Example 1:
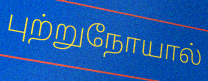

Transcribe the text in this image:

புற்றுநோயால்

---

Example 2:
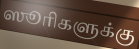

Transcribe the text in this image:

ஸூரிகளுக்கு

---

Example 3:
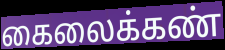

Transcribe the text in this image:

கைலைக்கண்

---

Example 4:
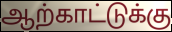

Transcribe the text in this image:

ஆற்காட்டுக்கு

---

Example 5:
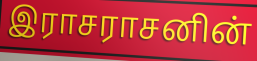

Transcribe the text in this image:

இராசராசனின்